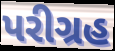
પરીગ્રહ